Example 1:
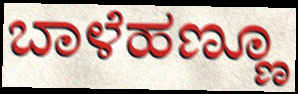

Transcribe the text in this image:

ಬಾಳೆಹಣ್ಣೂ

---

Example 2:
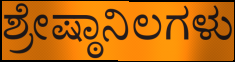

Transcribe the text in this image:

ಶ್ರೇಷ್ಠಾನಿಲಗಳು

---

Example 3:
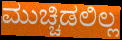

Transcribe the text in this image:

ಮುಚ್ಚಿಡಲಿಲ್ಲ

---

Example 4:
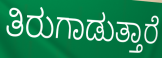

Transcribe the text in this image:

ತಿರುಗಾಡುತ್ತಾರೆ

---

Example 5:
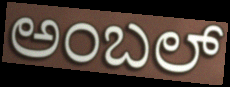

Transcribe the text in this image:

ಅಂಬಲ್